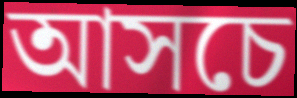
আসচে